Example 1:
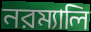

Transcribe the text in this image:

নরম্যালি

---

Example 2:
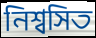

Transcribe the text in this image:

নিশ্বসিত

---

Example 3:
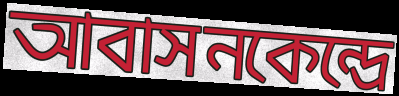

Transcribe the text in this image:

আবাসনকেন্দ্রে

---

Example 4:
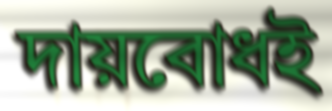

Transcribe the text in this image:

দায়বোধই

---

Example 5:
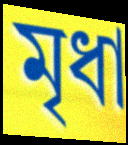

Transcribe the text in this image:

মৃধা